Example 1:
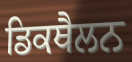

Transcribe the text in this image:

ਡਿਕਥੈਲਨ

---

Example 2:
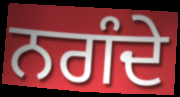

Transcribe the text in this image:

ਨਗੰਦੇ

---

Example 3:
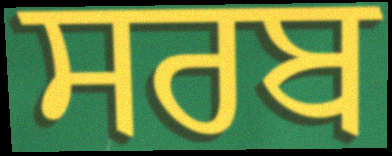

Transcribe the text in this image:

ਸਰਬ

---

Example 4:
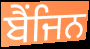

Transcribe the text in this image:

ਬੈਂਜਿਨ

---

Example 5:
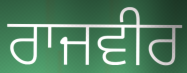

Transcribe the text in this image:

ਰਾਜਵੀਰ